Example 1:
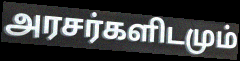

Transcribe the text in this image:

அரசர்களிடமும்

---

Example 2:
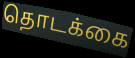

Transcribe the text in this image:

தொடக்கை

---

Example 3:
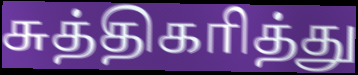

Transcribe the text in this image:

சுத்திகரித்து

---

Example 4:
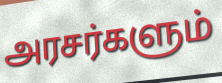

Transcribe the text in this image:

அரசர்களும்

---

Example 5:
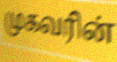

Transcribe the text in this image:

முகவரின்